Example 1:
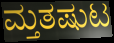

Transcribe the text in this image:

ಮ್ತತಷುಟ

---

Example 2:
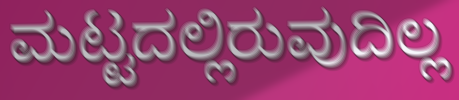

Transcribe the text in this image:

ಮಟ್ಟದಲ್ಲಿರುವುದಿಲ್ಲ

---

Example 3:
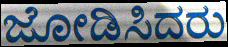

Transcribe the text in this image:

ಜೋಡಿಸಿದರು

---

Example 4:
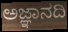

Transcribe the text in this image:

ಅಜ್ಞಾನದಿ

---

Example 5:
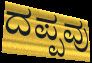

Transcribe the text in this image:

ದಪ್ಪವು